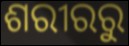
ଶରୀରରୁ